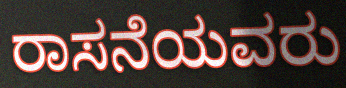
ರಾಸನೆಯವರು